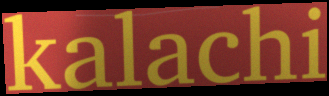
kalachi